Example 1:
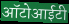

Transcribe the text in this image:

ऑटोआईटी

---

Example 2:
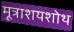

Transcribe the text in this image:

मूत्राशयशोथ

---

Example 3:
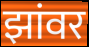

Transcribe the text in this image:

झांवर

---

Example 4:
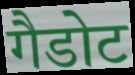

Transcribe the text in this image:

गैडोट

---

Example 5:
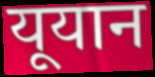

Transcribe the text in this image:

यूयान